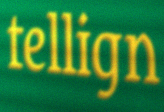
tellign